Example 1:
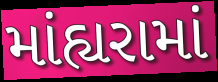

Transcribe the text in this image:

માંહ્યરામાં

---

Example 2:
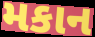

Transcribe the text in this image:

મકાન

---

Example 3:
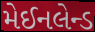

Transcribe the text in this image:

મેઈનલેન્ડ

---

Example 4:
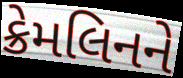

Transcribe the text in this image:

ક્રેમલિનને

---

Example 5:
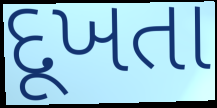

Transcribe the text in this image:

દૂખતા